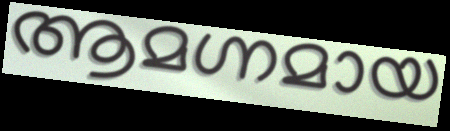
ആമഗ്നമായ